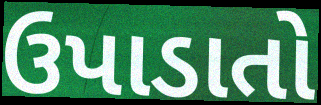
ઉપાડાતો